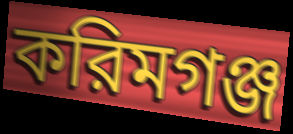
করিমগঞ্জ